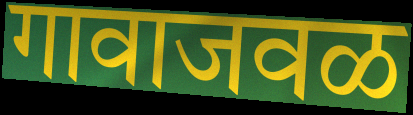
गावाजवळ